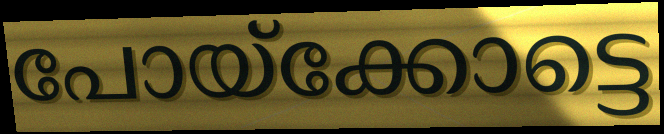
പോയ്ക്കോട്ടെ